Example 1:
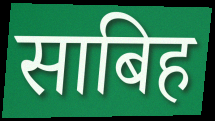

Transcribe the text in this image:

साबिह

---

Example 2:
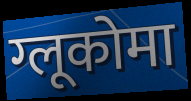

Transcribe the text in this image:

ग्‍लूकोमा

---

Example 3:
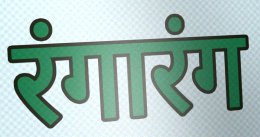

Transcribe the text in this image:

रंगारंग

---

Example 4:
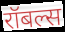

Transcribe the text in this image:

रॉबल्स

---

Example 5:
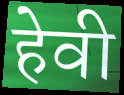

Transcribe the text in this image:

हेवी